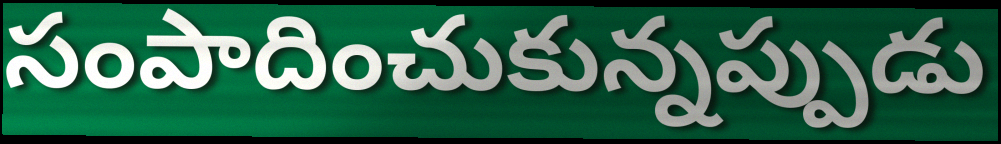
సంపాదించుకున్నప్పుడు